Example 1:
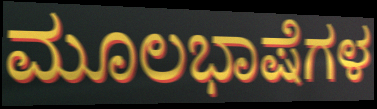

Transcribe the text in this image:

ಮೂಲಭಾಷೆಗಳ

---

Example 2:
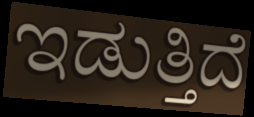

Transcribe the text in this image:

ಇಡುತ್ತಿದೆ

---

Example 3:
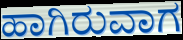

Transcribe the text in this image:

ಹಾಗಿರುವಾಗ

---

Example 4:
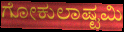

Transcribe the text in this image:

ಗೋಕುಲಾಷ್ಟಮಿ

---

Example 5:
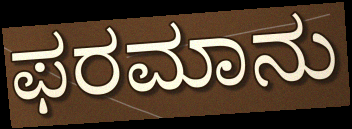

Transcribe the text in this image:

ಫರಮಾನು